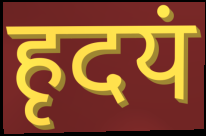
हृदयं